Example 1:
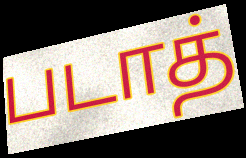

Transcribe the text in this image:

படாத்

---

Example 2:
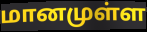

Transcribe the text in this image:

மானமுள்ள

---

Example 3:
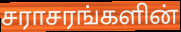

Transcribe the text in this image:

சராசரங்களின்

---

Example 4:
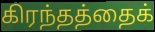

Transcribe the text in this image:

கிரந்தத்தைக்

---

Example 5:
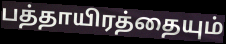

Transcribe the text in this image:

பத்தாயிரத்தையும்